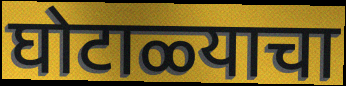
घोटाळ्याचा